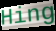
Hing